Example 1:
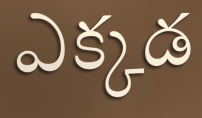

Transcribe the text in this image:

ఎక్కడ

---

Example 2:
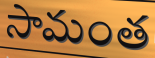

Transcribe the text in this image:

సామంత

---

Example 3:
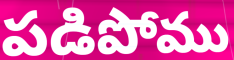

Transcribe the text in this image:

పడిపోము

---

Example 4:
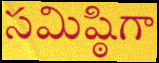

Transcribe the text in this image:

సమిష్ఠిగా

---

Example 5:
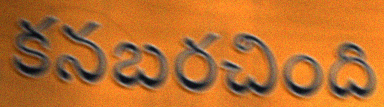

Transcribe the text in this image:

కనబరచింది